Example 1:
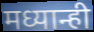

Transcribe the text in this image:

मध्यान्ही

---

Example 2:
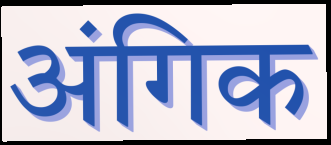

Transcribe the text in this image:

अंगिक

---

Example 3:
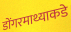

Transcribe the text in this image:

डोंगरमाथ्याकडे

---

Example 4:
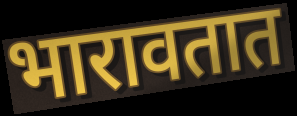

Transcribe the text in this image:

भारावतात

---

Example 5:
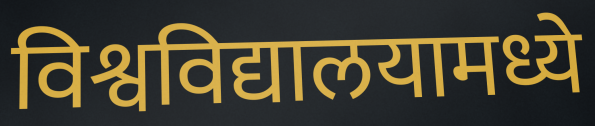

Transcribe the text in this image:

विश्वविद्यालयामध्ये